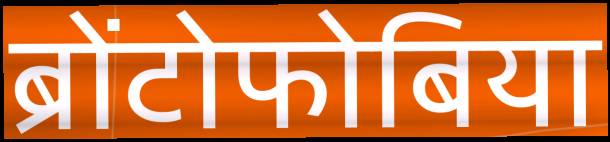
ब्रोंटोफोबिया